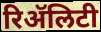
रिॲलिटी